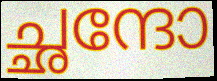
ച്ഛന്ദോ